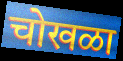
चोखळा